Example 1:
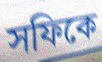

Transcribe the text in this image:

সফিকে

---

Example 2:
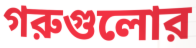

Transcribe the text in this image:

গরুগুলোর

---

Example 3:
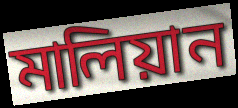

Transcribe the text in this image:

মালিয়ান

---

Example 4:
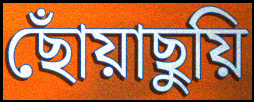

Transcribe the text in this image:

ছোঁয়াছুয়ি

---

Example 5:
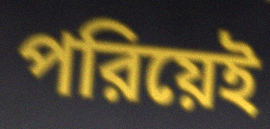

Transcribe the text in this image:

পরিয়েই